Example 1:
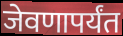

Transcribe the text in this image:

जेवणापर्यंत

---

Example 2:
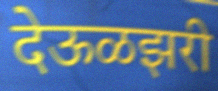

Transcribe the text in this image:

देऊळझरी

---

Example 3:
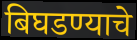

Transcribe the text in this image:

बिघडण्याचे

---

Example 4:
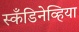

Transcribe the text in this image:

स्कँडिनेव्हिया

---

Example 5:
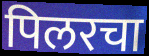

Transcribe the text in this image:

पिलरचा